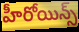
హీరోయిన్స్